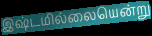
இஷ்டமில்லையென்று